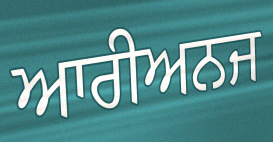
ਆਰੀਅਨਜ